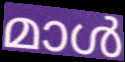
മാൾ